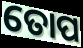
ତୋପ